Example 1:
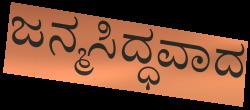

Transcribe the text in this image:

ಜನ್ಮಸಿದ್ಧವಾದ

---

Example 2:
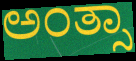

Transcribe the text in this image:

ಅಂತ್ಸಾ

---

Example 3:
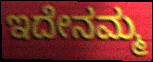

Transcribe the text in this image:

ಇದೇನಮ್ಮ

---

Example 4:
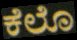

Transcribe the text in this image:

ಕೆಲೊ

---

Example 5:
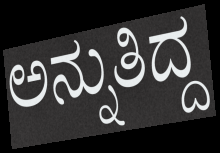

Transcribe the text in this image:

ಅನ್ನುತಿದ್ದ